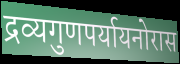
द्रव्यगुणपर्यायनोरास